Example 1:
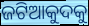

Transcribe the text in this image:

ଜଟିଆକୁଦକୁ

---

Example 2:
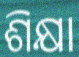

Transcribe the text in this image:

ଶିକ୍ଷା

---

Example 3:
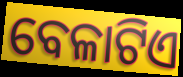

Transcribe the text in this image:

ବେଳାଟିଏ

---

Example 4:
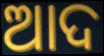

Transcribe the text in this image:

ଆଦ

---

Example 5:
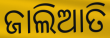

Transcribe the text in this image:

ଜାଲିଆତି